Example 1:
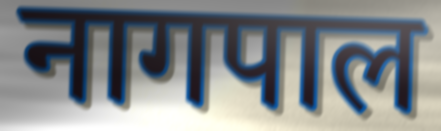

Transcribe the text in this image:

नागपाल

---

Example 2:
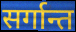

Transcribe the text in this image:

सर्गान्त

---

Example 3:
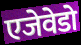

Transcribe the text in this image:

एजेवेडो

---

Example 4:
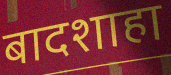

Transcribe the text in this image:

बादशाहा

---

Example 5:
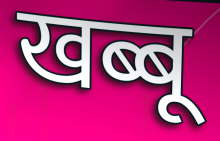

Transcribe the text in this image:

खब्‍बू